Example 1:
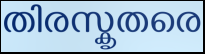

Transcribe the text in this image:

തിരസ്കൃതരെ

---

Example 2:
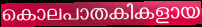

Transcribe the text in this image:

കൊലപാതകികളായ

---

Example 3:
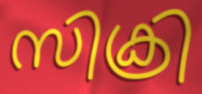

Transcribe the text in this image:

സിക്രി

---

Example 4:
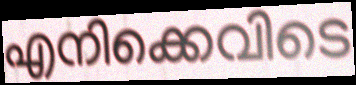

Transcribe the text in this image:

എനിക്കെവിടെ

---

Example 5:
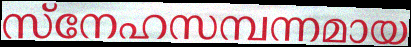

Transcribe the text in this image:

സ്നേഹസമ്പന്നമായ